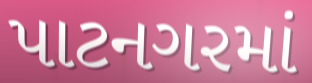
પાટનગરમાં